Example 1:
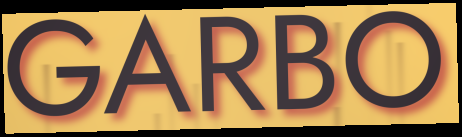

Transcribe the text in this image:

GARBO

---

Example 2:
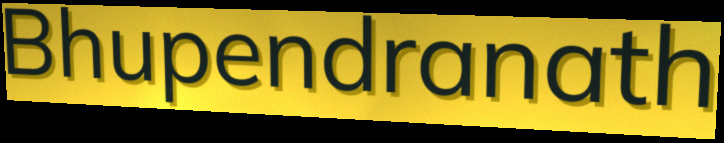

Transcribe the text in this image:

Bhupendranath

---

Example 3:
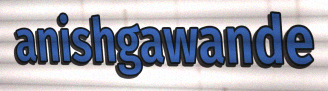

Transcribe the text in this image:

anishgawande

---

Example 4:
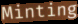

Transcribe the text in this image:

Minting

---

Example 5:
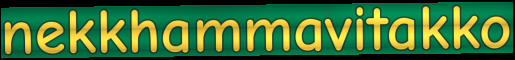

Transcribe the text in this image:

nekkhammavitakko